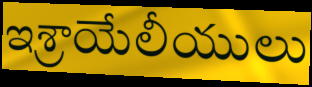
ఇశ్రాయేలీయులు